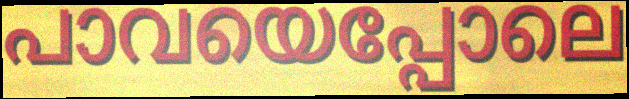
പാവയെപ്പോലെ